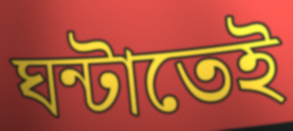
ঘন্টাতেই